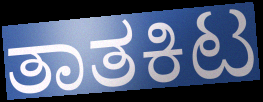
ತಾತಕಿಟ